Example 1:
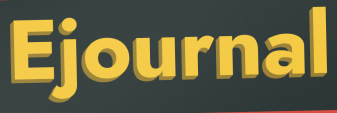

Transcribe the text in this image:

Ejournal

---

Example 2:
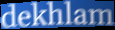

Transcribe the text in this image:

dekhlam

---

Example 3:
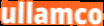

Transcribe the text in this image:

ullamco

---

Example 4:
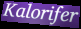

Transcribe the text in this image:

Kalorifer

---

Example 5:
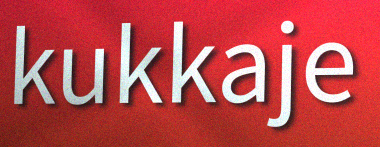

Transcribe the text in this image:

kukkaje